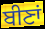
ਬੀਣਾਂ